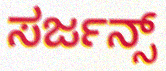
ಸರ್ಜನ್ಸ್